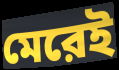
মেরেই